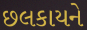
છલકાયને